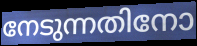
നേടുന്നതിനോ